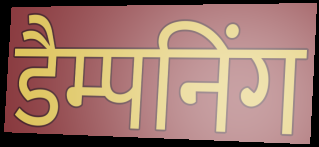
डैम्पनिंग